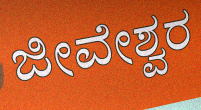
ಜೀವೇಶ್ವರ